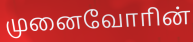
முனைவோரின்